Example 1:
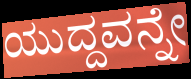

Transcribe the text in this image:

ಯುದ್ದವನ್ನೇ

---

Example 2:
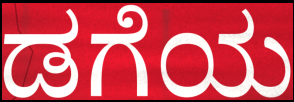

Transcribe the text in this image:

ಡಗೆಯ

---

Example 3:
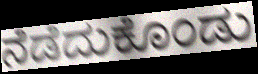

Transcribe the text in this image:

ನೆಡೆದುಕೊಂಡು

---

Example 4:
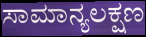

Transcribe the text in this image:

ಸಾಮಾನ್ಯಲಕ್ಷಣ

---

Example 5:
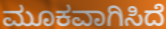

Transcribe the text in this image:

ಮೂಕವಾಗಿಸಿದೆ